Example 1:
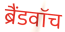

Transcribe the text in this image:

ब्रैंडवॉच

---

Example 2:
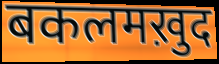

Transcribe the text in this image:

बकलमख़ुद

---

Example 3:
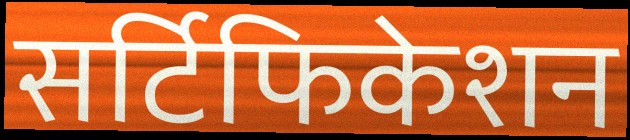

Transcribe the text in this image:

सर्टिफिकेशन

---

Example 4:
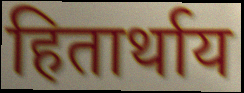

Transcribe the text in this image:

हितार्थाय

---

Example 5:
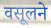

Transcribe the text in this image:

वसूलने